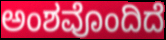
ಅಂಶವೊಂದಿದೆ